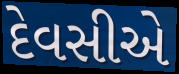
દેવસીએ